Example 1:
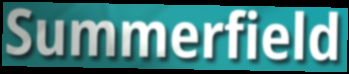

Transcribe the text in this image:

Summerfield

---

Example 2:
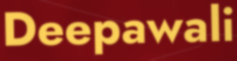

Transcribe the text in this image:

Deepawali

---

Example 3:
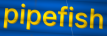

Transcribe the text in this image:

pipefish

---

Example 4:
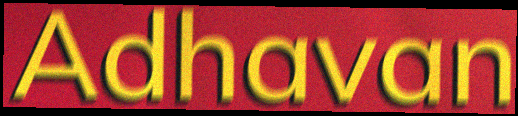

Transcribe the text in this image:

Adhavan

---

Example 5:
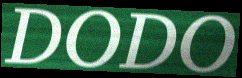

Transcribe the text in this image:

DODO